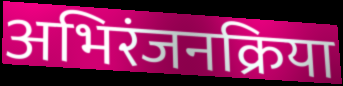
अभिरंजनक्रिया